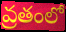
వ్రతంలో